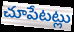
చూపేటట్లు